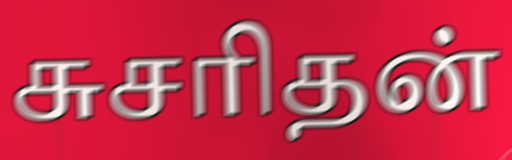
சுசரிதன்